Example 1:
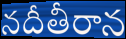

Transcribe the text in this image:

నదీతీరాన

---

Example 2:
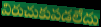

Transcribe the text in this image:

విరుచుకుపడలేదు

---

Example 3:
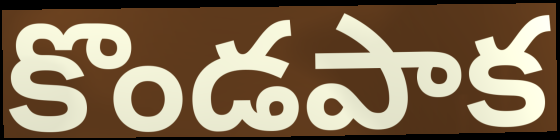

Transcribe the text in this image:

కొండపాక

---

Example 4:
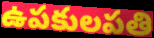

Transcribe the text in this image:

ఉపకులపతి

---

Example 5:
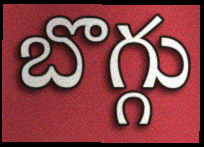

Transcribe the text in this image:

బొగ్గు